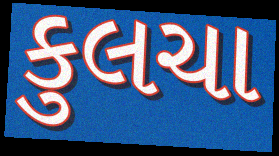
કુલચા